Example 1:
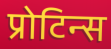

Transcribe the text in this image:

प्रोटिन्स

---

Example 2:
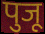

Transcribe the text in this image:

पुजू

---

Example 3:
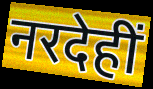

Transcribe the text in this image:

नरदेहीं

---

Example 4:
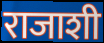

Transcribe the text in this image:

राजाशी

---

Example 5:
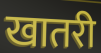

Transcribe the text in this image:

खातरी